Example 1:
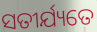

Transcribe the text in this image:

ସତୀର୍ଯ୍ୟତେ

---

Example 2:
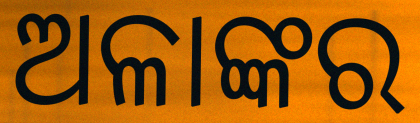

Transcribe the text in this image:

ଅଳାଙ୍କର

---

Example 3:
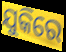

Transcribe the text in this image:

ଯୁକିରେ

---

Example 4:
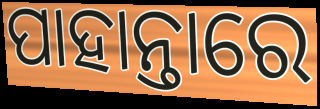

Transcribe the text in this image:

ପାହାନ୍ତାରେ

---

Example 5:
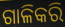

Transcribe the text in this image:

ଗାଳିକରି